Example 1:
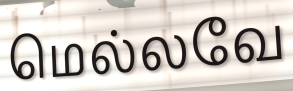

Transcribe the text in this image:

மெல்லவே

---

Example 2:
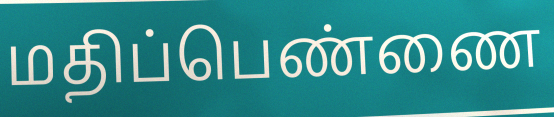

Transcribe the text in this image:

மதிப்பெண்ணை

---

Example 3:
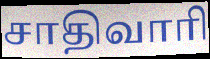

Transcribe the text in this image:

சாதிவாரி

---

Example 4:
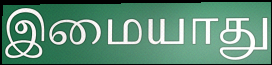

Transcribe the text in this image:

இமையாது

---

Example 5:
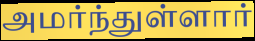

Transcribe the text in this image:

அமர்ந்துள்ளார்